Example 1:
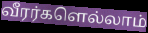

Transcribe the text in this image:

வீரர்களெல்லாம்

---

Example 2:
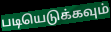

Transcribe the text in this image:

படியெடுக்கவும்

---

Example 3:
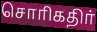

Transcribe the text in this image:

சொரிகதிர்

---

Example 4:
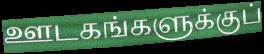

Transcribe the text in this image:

ஊடகங்களுக்குப்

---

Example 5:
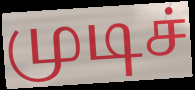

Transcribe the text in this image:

முடிச்